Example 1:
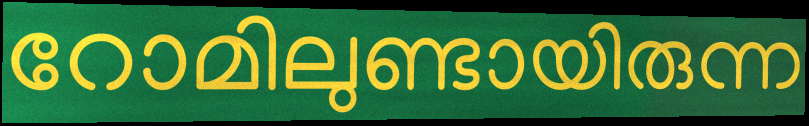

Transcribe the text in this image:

റോമിലുണ്ടായിരുന്ന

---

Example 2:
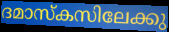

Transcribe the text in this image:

ദമാസ്കസിലേക്കു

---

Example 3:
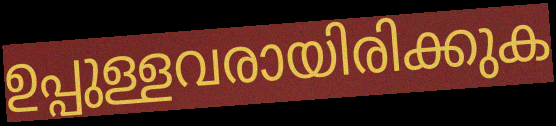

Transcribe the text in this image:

ഉപ്പുള്ളവരായിരിക്കുക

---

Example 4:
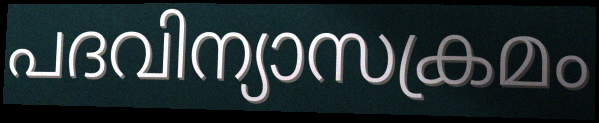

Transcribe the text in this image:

പദവിന്യാസക്രമം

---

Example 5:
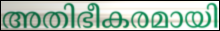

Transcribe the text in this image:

അതിഭീകരമായി